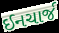
ઈનચાર્જ